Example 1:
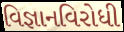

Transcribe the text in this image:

વિજ્ઞાનવિરોધી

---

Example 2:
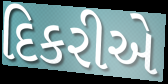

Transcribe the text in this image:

દિકરીએ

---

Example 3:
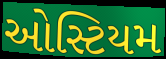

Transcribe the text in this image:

ઓસ્ટિયમ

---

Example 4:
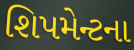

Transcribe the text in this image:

શિપમેન્ટના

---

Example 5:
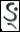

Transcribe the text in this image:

ઙ્